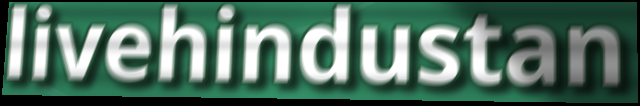
livehindustan